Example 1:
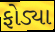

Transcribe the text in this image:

ફોડ્યા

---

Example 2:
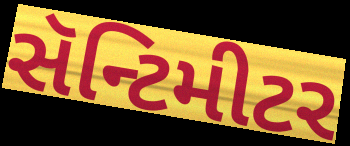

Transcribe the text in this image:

સૅન્ટિમીટર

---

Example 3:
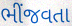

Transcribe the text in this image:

ભીંજવતા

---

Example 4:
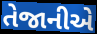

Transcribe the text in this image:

તેજાનીએ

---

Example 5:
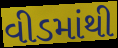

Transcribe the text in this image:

વીડમાંથી